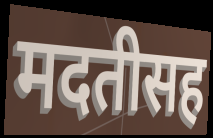
मदतीसह